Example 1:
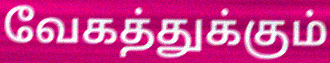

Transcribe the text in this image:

வேகத்துக்கும்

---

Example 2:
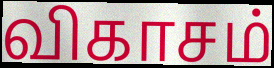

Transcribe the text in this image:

விகாசம்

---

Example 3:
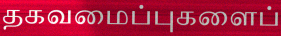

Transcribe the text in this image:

தகவமைப்புகளைப்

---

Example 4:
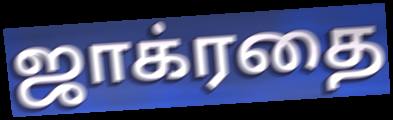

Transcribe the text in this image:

ஜாக்ரதை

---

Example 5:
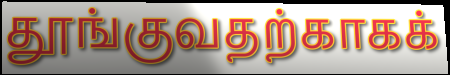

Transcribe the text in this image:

தூங்குவதற்காகக்